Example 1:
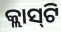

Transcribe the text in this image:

କ୍ଲାସ୍‍ଟି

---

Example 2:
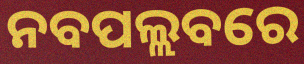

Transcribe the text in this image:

ନବପଲ୍ଲବରେ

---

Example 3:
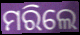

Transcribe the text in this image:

ମରିଲେ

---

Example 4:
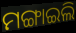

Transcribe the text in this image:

ମଙ୍ଗାଇଲି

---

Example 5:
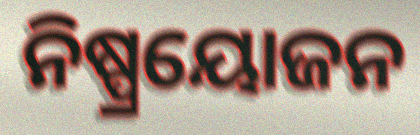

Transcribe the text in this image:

ନିଷ୍ପ୍ରୟୋଜନ